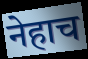
नेहाच